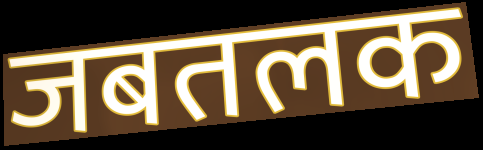
जबतलक